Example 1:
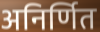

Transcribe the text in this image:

अनिर्णित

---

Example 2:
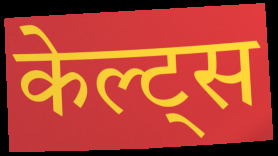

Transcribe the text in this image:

केल्ट्स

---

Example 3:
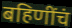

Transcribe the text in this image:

बहिणींचं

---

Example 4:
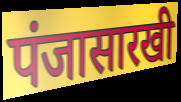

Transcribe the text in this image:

पंजासारखी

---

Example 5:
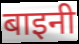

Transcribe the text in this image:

बाइनी